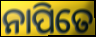
ନାପିତେ